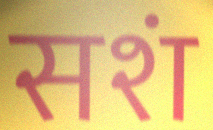
सशं